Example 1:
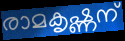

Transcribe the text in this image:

രാമകൃഷ്ണന്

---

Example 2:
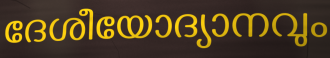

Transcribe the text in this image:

ദേശീയോദ്യാനവും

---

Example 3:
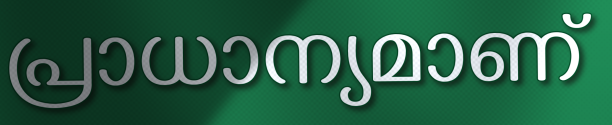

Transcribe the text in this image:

പ്രാധാന്യമാണ്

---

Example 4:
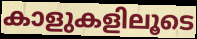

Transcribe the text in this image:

കാളുകളിലൂടെ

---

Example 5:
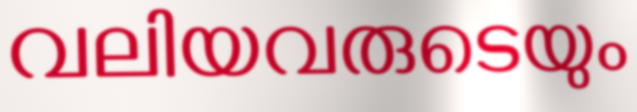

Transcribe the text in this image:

വലിയവരുടെയും